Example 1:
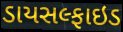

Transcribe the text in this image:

ડાયસલ્ફાઇડ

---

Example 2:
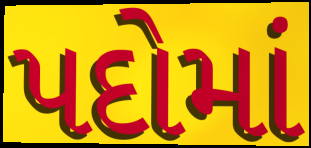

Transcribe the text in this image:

પદોમાં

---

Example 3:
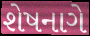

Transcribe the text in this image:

શેષનાગે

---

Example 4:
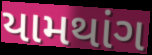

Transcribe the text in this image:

યામથાંગ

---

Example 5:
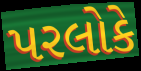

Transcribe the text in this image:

પરલોકે